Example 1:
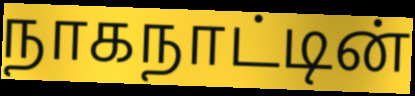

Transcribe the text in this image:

நாகநாட்டின்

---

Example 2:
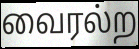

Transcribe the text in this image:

வைரல்ற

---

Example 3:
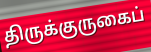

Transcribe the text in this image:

திருக்குருகைப்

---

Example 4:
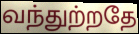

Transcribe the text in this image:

வந்துற்றதே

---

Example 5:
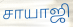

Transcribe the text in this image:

சாயாஜி